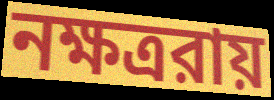
নক্ষত্ররায়